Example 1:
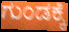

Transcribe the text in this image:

ಗುಂಡಕ್ಕೆ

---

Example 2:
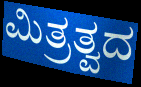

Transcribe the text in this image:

ಮಿತ್ರತ್ವದ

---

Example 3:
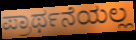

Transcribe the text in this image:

ಪ್ರಾರ್ಥನೆಯಲ್ಲ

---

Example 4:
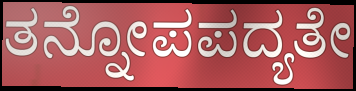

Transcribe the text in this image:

ತನ್ನೋಪಪದ್ಯತೇ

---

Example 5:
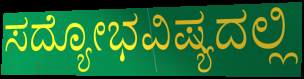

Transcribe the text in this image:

ಸದ್ಯೋಭವಿಷ್ಯದಲ್ಲಿ